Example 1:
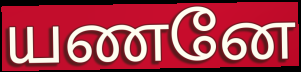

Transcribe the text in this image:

யணனே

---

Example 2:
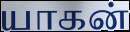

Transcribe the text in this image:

யாகன்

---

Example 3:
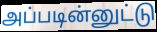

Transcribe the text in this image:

அப்படின்னுட்டு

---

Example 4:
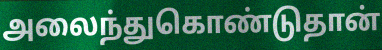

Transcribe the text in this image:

அலைந்துகொண்டுதான்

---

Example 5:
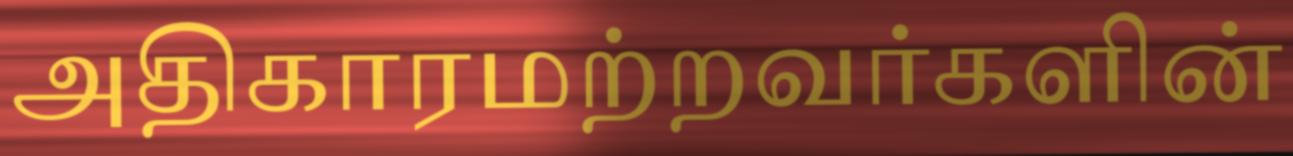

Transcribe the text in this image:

அதிகாரமற்றவர்களின்